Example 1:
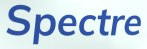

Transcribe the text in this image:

Spectre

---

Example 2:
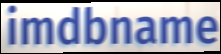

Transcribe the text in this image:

imdbname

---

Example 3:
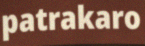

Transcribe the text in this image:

patrakaro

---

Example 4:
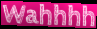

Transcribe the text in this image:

Wahhhh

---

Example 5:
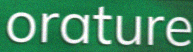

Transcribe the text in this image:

orature